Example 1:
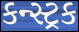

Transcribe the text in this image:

કન્સ્ટ્રક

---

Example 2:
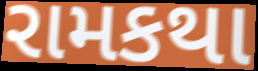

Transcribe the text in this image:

રામકથા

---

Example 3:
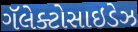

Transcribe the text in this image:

ગૅલેક્ટોસાઇડેઝ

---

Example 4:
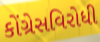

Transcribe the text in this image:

કોંગ્રેસવિરોધી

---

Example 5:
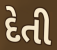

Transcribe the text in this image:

દેતી